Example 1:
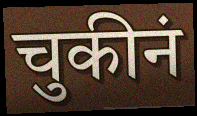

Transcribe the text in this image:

चुकीनं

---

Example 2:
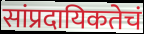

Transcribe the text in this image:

सांप्रदायिकतेचं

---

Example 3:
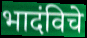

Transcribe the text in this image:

भादंविचे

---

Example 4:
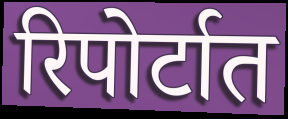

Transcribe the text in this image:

रिपोर्टात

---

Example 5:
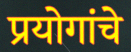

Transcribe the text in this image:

प्रयोगांचे